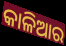
କାଳିଆର